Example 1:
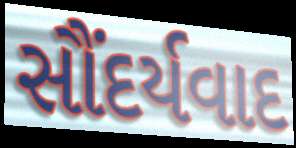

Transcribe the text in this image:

સૌંદર્યવાદ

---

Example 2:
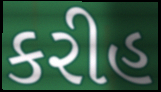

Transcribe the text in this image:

કરીહ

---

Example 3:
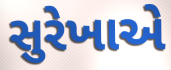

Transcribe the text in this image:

સુરેખાએ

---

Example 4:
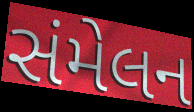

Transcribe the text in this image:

સંમેલન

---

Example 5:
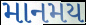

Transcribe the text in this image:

માનમય